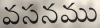
వసనము